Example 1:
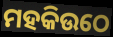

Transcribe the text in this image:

ମହକିଉଠେ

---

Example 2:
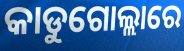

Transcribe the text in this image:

କାଡୁଗୋଲ୍ଲାରେ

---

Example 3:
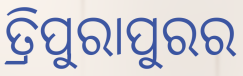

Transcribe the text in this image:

ତ୍ରିପୁରାପୁରର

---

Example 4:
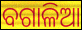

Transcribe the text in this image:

ବଗାଳିଆ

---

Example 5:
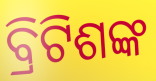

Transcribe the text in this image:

ବ୍ରିଟିଶଙ୍କ